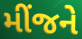
મીંજને